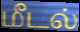
மீடல்